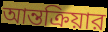
আন্তক্রিয়ার